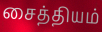
சைத்தியம்